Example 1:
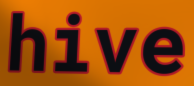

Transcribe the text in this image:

hive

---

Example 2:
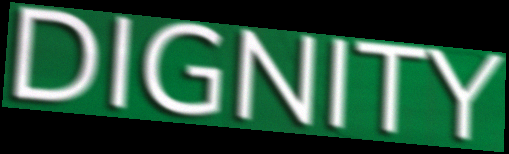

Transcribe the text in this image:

DIGNITY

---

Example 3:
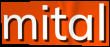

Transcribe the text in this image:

mital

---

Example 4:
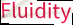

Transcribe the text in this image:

Fluidity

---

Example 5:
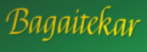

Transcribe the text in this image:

Bagaitekar